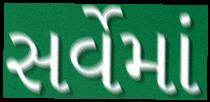
સર્વેમાં